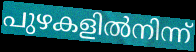
പുഴകളിൽനിന്ന്